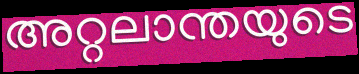
അറ്റലാന്തയുടെ